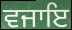
ਵਜਾਇ